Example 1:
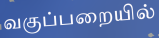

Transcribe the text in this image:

வகுப்பறையில்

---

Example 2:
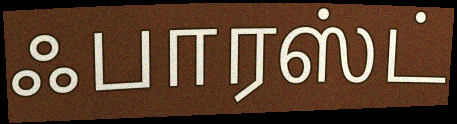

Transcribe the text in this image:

ஃபாரஸ்ட்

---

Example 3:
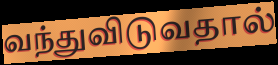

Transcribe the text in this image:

வந்துவிடுவதால்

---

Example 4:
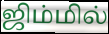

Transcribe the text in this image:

ஜிம்மில்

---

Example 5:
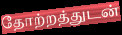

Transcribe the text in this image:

தோற்றத்துடன்